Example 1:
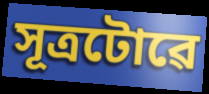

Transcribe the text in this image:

সূত্ৰটোৱে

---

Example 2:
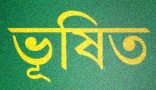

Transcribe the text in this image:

ভূষিত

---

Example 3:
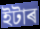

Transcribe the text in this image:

ইটাৰ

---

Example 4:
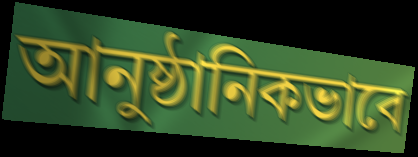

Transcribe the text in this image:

আনুষ্ঠানিকভাবে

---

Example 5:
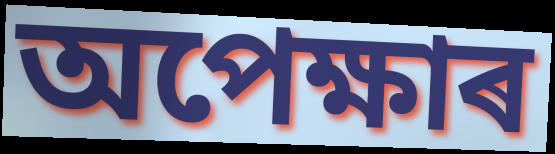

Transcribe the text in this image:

অপেক্ষাৰ